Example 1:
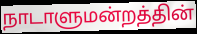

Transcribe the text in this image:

நாடாளுமன்றத்தின்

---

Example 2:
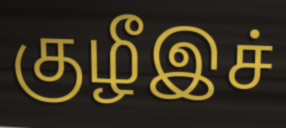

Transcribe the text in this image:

குழீஇச்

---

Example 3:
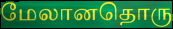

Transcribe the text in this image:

மேலானதொரு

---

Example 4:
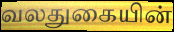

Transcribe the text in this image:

வலதுகையின்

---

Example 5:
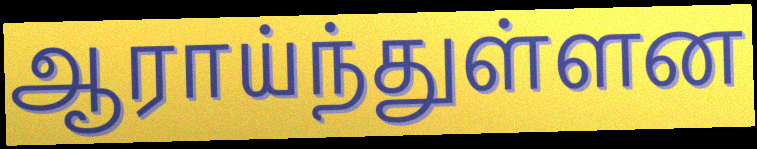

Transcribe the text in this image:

ஆராய்ந்துள்ளன